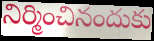
నిర్మించినందుకు